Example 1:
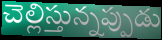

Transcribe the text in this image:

చెల్లిస్తున్నప్పుడు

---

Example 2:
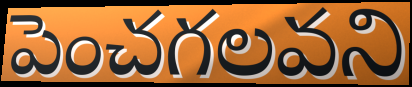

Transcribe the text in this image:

పెంచగలవని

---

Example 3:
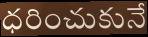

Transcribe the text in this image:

ధరించుకునే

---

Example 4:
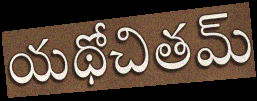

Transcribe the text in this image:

యథోచితమ్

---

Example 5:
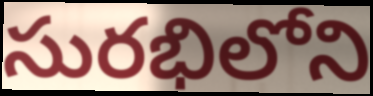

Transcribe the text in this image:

సురభిలోని